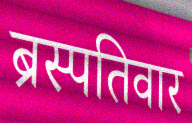
ब्रस्पतिवार